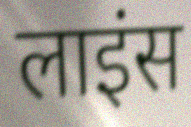
लाइंस